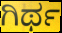
ಗಿರ್ಥ